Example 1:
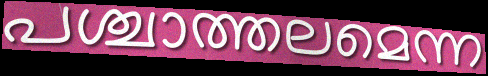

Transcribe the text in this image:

പശ്ചാത്തലമെന്ന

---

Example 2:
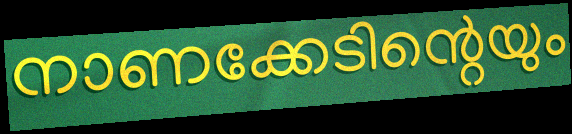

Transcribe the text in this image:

നാണക്കേടിന്റെയും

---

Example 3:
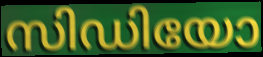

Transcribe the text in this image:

സിഡിയോ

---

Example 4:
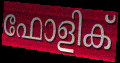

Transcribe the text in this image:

ഫോളിക്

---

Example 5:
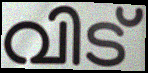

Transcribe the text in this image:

വിട്